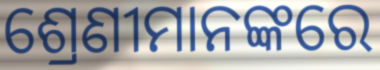
ଶ୍ରେଣୀମାନଙ୍କରେ